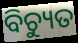
ବିଚ୍ୟୁତ